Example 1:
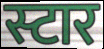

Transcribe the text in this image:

स्‍टार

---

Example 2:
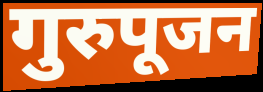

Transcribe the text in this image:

गुरुपूजन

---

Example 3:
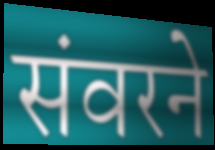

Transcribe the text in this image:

संवरने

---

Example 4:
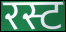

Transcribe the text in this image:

रस्ट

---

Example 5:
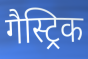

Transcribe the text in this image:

गैस्ट्रिक